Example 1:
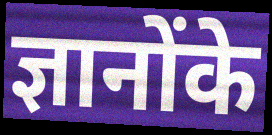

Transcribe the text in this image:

ज्ञानोंके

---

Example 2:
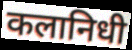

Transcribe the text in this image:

कलानिधी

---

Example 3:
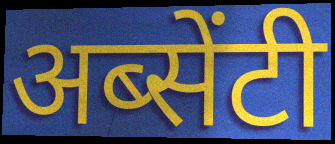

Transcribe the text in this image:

अब्सेंटी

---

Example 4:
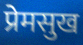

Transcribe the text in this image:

प्रेमसुख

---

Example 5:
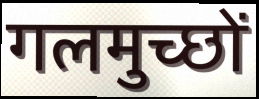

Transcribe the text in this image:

गलमुच्छों